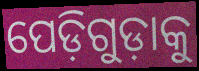
ପେଡ଼ିଗୁଡ଼ାକୁ